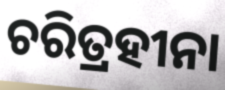
ଚରିତ୍ରହୀନା